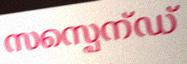
സസ്പെന്ഡ്